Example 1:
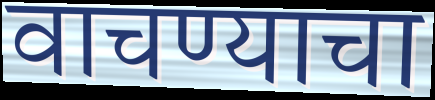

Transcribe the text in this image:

वाचण्याचा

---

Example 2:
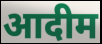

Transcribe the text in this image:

आदीम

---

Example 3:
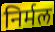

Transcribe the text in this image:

निर्मल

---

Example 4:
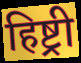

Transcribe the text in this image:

हिष्ट्री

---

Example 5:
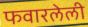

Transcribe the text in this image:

फवारलेली